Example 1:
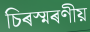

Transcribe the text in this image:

চিৰস্মৰণীয়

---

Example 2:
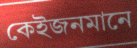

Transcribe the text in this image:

কেইজনমানে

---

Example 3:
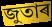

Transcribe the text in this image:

জুতাৰ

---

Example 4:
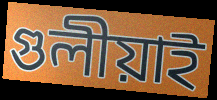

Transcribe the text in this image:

গুলীয়াই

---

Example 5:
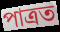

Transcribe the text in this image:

পাত্ৰত